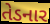
તેડનાર